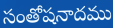
సంతోషనాదము